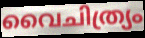
വൈചിത്ര്യം